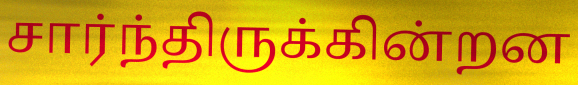
சார்ந்திருக்கின்றன